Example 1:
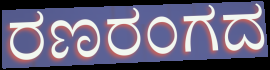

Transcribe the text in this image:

ರಣರಂಗದ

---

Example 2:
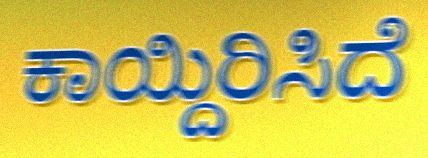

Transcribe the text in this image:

ಕಾಯ್ದಿರಿಸಿದೆ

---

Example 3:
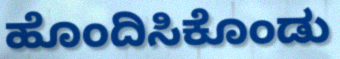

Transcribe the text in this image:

ಹೊಂದಿಸಿಕೊಂಡು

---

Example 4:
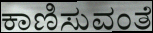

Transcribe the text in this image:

ಕಾಣಿಸುವಂತೆ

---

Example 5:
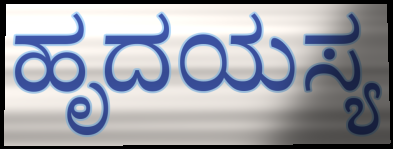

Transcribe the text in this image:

ಹೃದಯಸ್ಯ